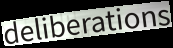
deliberations